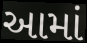
આમાં